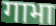
गाभा